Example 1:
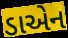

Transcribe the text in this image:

ડાએન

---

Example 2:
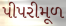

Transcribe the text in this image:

પીપરીમૂળ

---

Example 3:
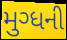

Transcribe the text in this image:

મુગ્ધની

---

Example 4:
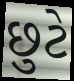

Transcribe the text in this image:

છુટે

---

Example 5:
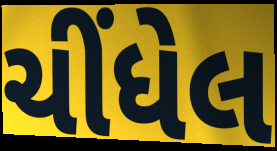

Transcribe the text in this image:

ચીંધેલ